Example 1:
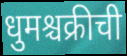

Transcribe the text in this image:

धुमश्चक्रीची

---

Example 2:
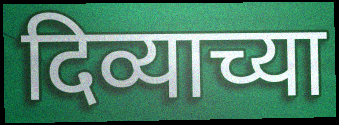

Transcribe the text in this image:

दिव्याच्या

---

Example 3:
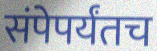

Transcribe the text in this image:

संपेपर्यंतच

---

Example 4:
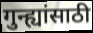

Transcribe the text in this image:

गुन्ह्यांसाठी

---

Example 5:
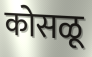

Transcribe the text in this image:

कोसळू